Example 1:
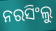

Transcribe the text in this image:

ନରସିଂଲୁ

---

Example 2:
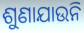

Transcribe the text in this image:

ଶୁଣାଯାଉନି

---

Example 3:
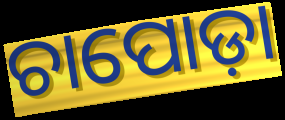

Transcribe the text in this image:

ଚାପୋଡ଼ା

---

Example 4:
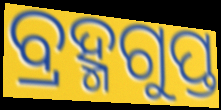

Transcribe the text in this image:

ବ୍ରହ୍ମଗୁପ୍ତ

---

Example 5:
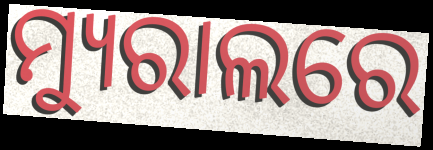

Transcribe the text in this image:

ମ୍ୟୁରାଲରେ